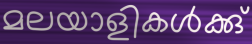
മലയാളികൾക്കു്